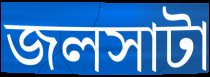
জলসাটা